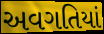
અવગતિયાં